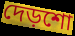
দেড়শো